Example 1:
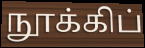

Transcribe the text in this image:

நூக்கிப்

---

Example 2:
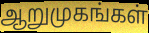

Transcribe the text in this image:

ஆறுமுகங்கள்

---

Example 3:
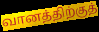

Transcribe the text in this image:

வானத்திற்குத்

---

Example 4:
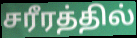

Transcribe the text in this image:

சரீரத்தில்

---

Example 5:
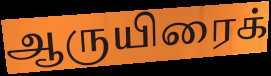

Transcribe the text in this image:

ஆருயிரைக்